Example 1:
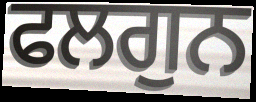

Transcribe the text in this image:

ਫਲਗੁਨ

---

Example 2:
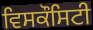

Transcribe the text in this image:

ਵਿਸਕੌਸਿਟੀ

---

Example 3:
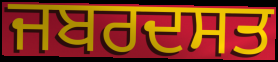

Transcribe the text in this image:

ਜਬਰਦਸਤ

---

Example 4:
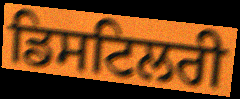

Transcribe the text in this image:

ਡਿਸਟਿਲਰੀ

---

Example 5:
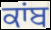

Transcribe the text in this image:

ਕਾਂਬ